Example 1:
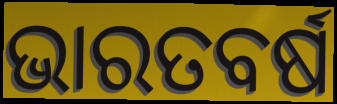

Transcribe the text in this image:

ଭାରତବର୍ଷ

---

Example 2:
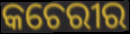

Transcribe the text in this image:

କଚେରୀର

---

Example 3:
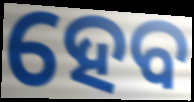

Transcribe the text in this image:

ହେବ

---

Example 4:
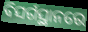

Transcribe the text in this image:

ବିସର୍ଗସ୍ଥାନରେ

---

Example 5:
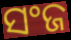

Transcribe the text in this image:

ସଂଜ